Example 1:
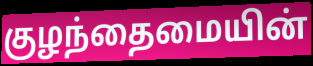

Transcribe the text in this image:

குழந்தைமையின்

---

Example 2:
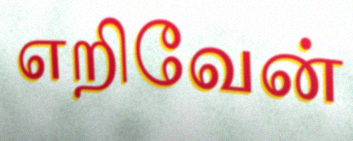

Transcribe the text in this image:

எறிவேன்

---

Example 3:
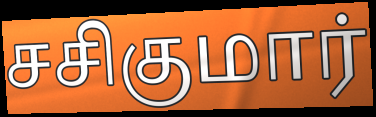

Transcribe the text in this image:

சசிகுமார்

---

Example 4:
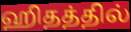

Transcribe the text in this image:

ஹிதத்தில்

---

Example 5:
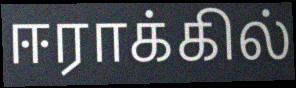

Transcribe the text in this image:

ஈராக்கில்